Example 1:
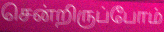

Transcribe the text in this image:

சென்றிருப்போம்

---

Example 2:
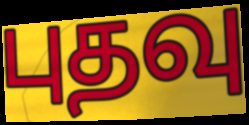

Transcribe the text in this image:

புதவு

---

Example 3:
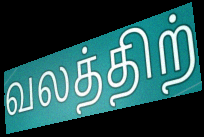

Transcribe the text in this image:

வலத்திற்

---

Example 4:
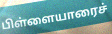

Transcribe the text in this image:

பிள்ளையாரைச்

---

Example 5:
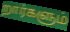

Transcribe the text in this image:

றார்களும்